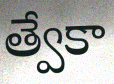
త్వేకా